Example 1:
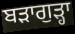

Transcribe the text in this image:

ਬੜਾਗੁੜ੍ਹਾ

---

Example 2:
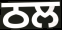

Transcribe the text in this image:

ਠਲ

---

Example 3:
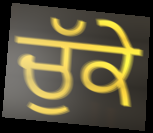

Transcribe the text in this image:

ਚੁੱਕੇ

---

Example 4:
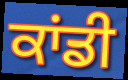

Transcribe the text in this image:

ਕਾਂਡੀ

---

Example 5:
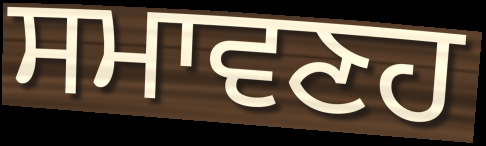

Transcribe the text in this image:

ਸਮਾਵਣਹ